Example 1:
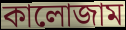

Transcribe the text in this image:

কালোজাম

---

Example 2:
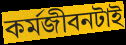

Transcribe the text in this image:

কর্মজীবনটাই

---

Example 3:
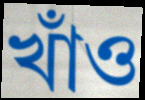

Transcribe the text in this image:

খাঁও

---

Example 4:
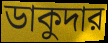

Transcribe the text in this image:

ডাকুদার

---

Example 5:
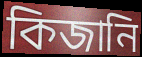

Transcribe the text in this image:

কিজানি